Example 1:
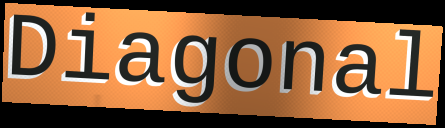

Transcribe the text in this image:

Diagonal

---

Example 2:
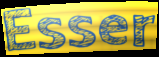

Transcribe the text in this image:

Esser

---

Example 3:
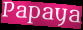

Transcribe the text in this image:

Papaya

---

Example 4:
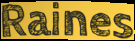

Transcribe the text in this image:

Raines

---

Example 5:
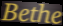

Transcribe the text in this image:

Bethe